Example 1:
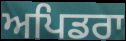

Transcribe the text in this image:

ਅਪਿਡਰਾ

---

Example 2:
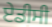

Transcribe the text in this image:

ਏਡੀਸੀ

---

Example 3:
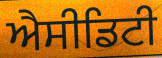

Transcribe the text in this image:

ਐਸੀਡਿਟੀ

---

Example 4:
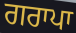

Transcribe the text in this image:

ਗਰਾਪਾ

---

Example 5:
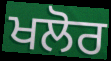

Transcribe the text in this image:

ਖਲੋਰ